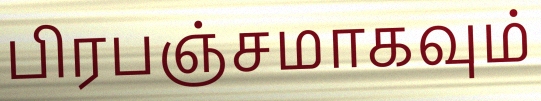
பிரபஞ்சமாகவும்